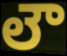
లౌ